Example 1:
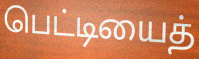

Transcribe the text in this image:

பெட்டியைத்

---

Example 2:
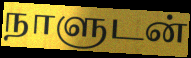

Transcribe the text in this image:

நாளுடன்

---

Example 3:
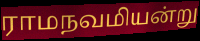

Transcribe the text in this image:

ராமநவமியன்று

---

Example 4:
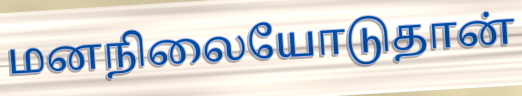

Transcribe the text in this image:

மனநிலையோடுதான்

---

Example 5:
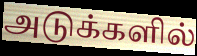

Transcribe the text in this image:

அடுக்களில்